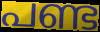
പണ്ട